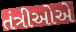
તંત્રીઓએ